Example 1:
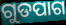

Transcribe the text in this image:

ଗୁଡପାଗ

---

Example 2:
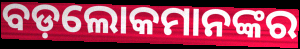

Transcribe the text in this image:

ବଡ଼ଲୋକମାନଙ୍କର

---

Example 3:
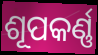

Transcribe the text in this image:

ଶୂପକର୍ଣ୍ଣ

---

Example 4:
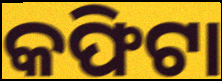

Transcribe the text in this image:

କଫିଟା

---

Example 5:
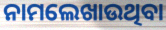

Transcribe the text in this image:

ନାମଲେଖାଉଥିବା